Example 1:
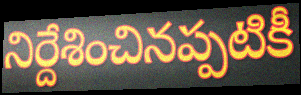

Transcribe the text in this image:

నిర్దేశించినప్పటికీ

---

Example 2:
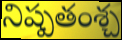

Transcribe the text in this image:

నిష్పతంశ్చ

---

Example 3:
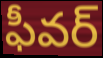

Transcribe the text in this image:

ఫీవర్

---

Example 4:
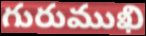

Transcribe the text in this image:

గురుముఖి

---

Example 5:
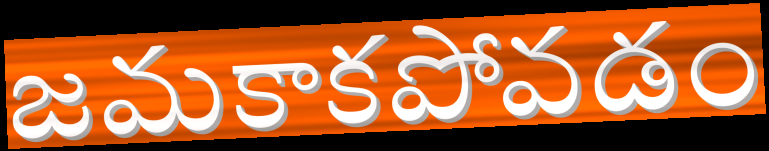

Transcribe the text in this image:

జమకాకపోవడం